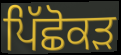
ਪਿੱਛੋਕੜ